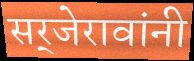
सर्जेरावांनी